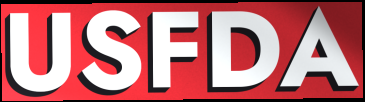
USFDA